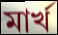
মার্খ